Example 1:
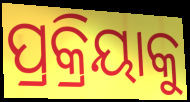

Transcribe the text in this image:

ପ୍ରକ୍ରିୟାକୁ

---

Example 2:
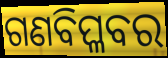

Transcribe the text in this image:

ଗଣବିପ୍ଳବର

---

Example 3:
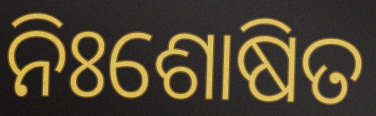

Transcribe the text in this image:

ନିଃଶୋଷିତ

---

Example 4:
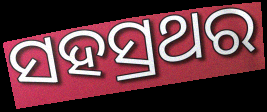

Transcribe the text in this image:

ସହସ୍ରଥର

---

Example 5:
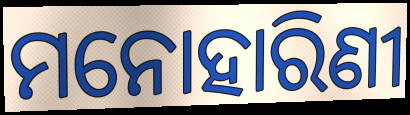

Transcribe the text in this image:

ମନୋହାରିଣୀ